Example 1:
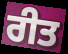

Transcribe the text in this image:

ਰੀਤ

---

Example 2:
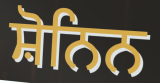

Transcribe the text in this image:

ਸ਼ੋਨਿਨ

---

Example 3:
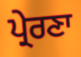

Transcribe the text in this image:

ਪ੍ਰੇਰਣਾ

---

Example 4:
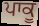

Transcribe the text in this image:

ਪਾਕੂ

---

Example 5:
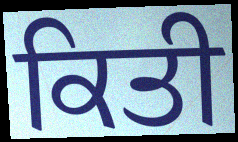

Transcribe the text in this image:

ਕਿਤੀ